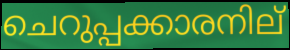
ചെറുപ്പക്കാരനില്